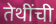
तेथींची